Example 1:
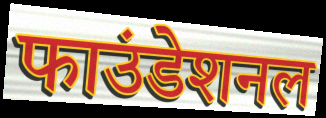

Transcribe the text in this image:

फाउंडेशनल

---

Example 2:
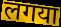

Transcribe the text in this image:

लगया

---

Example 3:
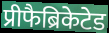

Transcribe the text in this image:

प्रीफैब्रिकेटेड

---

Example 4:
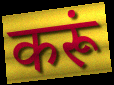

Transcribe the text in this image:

करूं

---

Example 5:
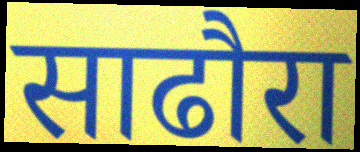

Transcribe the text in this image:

साढौरा